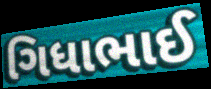
ગિધાભાઈ